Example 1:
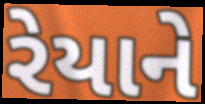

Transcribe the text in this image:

રેયાને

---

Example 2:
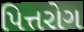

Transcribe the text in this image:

પિત્તરોગ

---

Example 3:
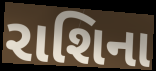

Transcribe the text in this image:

રાશિના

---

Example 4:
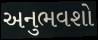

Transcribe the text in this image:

અનુભવશો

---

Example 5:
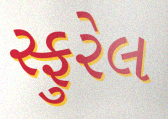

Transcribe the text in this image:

સ્ફુરેલ